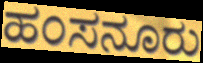
ಹಂಸನೂರು